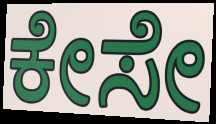
ಕೇಸೇ